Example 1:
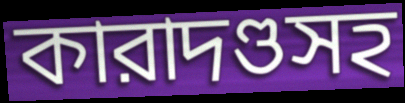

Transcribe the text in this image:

কারাদণ্ডসহ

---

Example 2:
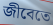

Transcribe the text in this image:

জীবেতে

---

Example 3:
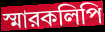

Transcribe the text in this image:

স্মারকলিপি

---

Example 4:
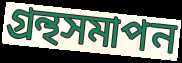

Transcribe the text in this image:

গ্রন্থসমাপন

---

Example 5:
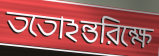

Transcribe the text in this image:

ততোঽন্তরিক্ষে